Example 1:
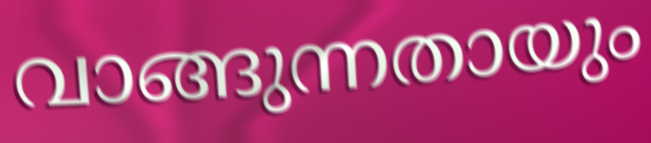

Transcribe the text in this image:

വാങ്ങുന്നതായും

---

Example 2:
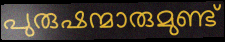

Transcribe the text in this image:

പുരുഷന്മാരുമുണ്ട്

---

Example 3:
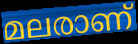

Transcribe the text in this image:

മലരാണ്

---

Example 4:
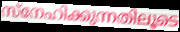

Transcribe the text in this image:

സ്നേഹിക്കുന്നതിലൂടെ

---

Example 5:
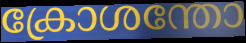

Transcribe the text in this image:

ക്രോശന്തോ